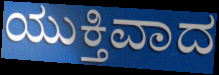
ಯುಕ್ತಿವಾದ